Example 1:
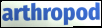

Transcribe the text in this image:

arthropod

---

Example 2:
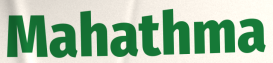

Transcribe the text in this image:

Mahathma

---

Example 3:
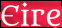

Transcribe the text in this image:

Eire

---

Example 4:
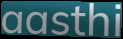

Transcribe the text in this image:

aasthi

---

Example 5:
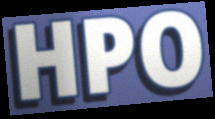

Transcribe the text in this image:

HPO